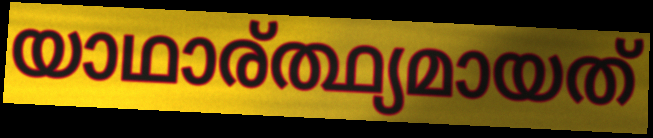
യാഥാര്ത്ഥ്യമായത്